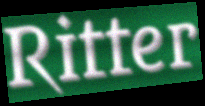
Ritter